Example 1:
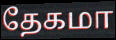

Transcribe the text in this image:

தேகமா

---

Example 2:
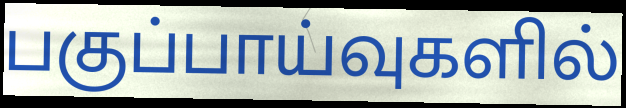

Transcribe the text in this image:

பகுப்பாய்வுகளில்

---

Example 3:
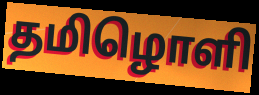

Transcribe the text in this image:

தமிழொளி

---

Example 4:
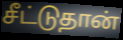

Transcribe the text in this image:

சீட்டுதான்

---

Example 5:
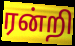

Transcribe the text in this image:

ரன்றி